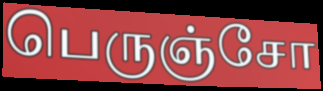
பெருஞ்சோ